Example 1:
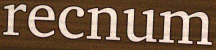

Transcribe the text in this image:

recnum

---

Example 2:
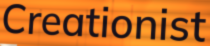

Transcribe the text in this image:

Creationist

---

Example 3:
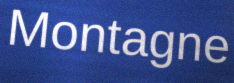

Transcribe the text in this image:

Montagne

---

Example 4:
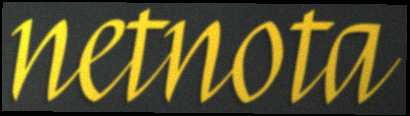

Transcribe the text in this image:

netnota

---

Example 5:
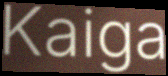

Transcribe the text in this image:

Kaiga